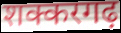
शक्करगढ़